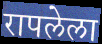
रापलेला